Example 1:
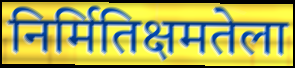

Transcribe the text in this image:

निर्मितिक्षमतेला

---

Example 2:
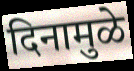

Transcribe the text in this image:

दिनामुळे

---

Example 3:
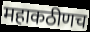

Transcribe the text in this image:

महाकठीणच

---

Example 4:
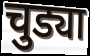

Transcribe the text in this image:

चुड्या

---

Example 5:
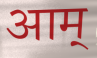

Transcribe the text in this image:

आम्